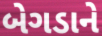
બેગડાને